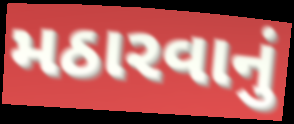
મઠારવાનું